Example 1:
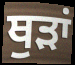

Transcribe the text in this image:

ਥੁੜਾਂ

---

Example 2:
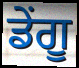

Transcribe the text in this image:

ਡੇਂਗੂ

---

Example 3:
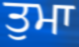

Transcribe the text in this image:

ਤੁਮਾ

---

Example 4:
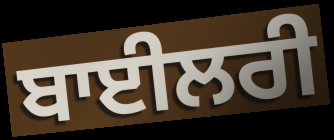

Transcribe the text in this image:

ਬਾਈਲਰੀ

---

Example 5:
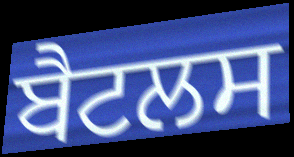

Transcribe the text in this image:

ਬੈਟਲਸ